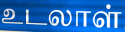
உடலாள்